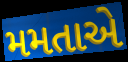
મમતાએ